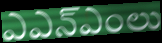
ఎఎన్ఎంలు